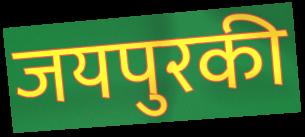
जयपुरकी